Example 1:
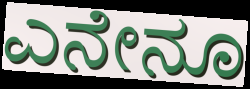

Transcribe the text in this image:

ಎನೇನೂ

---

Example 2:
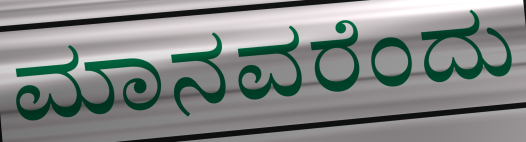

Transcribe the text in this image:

ಮಾನವರೆಂದು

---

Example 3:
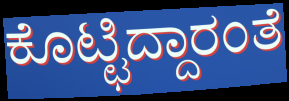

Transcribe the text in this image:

ಕೊಟ್ಟಿದ್ದಾರಂತೆ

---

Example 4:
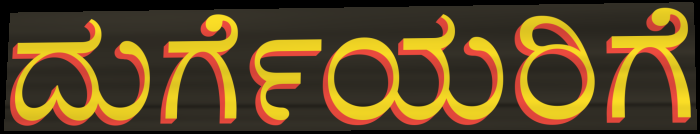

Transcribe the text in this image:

ದುರ್ಗೆಯರಿಗೆ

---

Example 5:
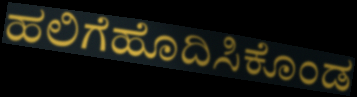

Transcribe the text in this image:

ಹಲಿಗೆಹೊದಿಸಿಕೊಂಡ